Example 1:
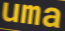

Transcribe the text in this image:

uma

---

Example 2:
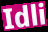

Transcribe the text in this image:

Idli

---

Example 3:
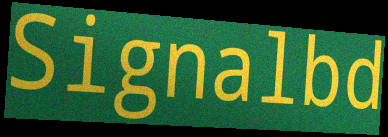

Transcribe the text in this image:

Signalbd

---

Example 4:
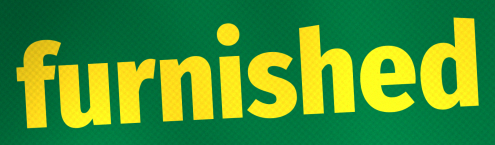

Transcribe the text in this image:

furnished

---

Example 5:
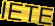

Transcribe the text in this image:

IETE